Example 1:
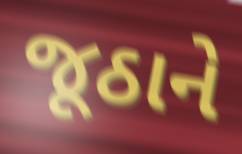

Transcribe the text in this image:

જૂઠાને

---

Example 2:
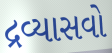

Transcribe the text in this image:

દ્રવ્યાસવો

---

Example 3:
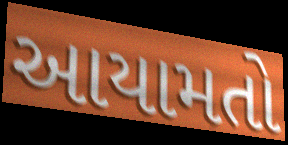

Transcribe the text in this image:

આયામતો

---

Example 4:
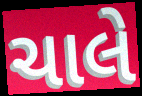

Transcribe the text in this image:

ચાલે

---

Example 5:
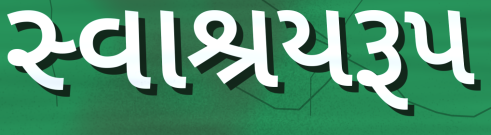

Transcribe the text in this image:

સ્વાશ્રયરૂપ